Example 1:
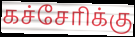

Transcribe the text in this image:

கச்சேரிக்கு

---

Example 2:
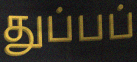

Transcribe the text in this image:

துப்பப்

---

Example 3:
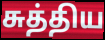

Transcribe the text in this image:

சுத்திய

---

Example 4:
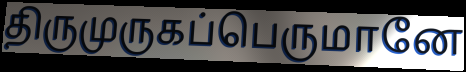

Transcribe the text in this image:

திருமுருகப்பெருமானே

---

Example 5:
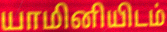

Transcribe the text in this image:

யாமினியிடம்